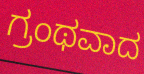
ಗ್ರಂಥವಾದ